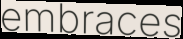
embraces